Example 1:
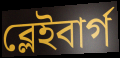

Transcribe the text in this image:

ব্লেইবার্গ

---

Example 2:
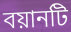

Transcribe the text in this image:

বয়ানটি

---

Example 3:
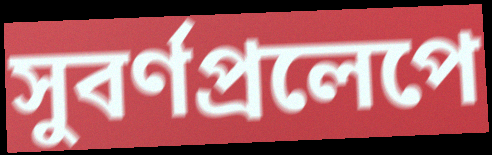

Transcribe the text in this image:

সুবর্ণপ্রলেপে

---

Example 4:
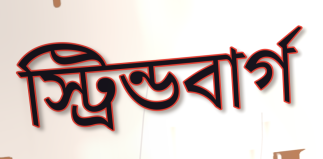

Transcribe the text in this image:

স্ট্রিন্ডবার্গ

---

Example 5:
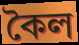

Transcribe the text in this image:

কৈল